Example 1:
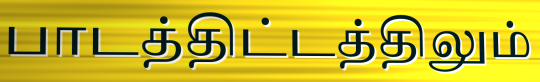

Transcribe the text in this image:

பாடத்திட்டத்திலும்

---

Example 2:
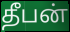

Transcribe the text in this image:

தீபன்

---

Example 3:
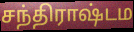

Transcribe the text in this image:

சந்திராஷ்டம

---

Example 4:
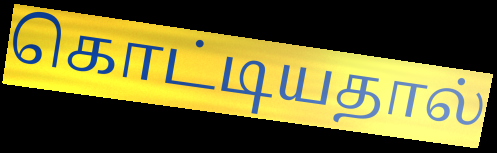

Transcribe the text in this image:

கொட்டியதால்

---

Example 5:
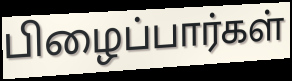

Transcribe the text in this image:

பிழைப்பார்கள்